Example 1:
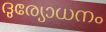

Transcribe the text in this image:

ദുര്യോധനം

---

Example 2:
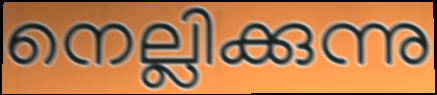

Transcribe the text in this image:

നെല്ലിക്കുന്നു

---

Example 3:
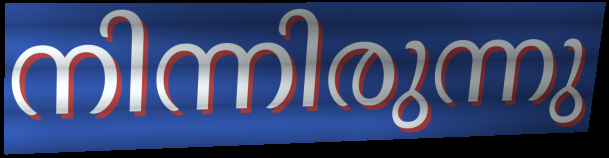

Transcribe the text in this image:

നിന്നിരുന്നു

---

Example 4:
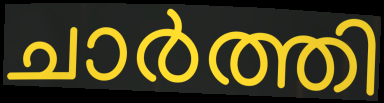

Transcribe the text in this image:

ചാർത്തി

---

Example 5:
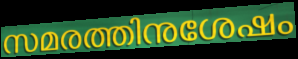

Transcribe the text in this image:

സമരത്തിനുശേഷം